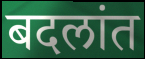
बदलांत